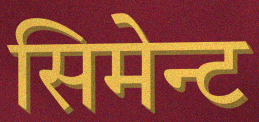
सिमेन्ट